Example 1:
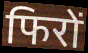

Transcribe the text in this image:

फिरों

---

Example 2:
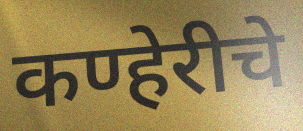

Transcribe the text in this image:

कण्हेरीचे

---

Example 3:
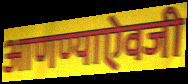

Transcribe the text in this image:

आणण्याऐवजी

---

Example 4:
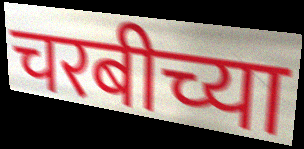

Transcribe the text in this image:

चरबीच्या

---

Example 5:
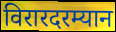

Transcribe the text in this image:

विरारदरम्यान